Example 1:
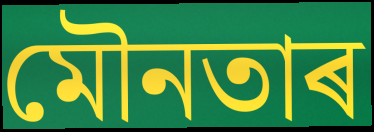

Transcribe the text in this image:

মৌনতাৰ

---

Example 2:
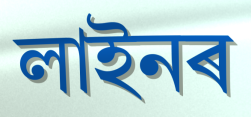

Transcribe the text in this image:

লাইনৰ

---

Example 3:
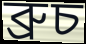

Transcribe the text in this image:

ব্ৰুচ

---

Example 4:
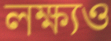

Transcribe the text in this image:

লক্ষ্যও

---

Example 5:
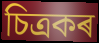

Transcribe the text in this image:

চিত্ৰকৰ